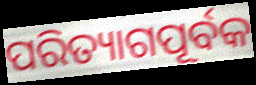
ପରିତ୍ୟାଗପୂର୍ବକ